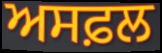
ਅਸਫ਼ਲ